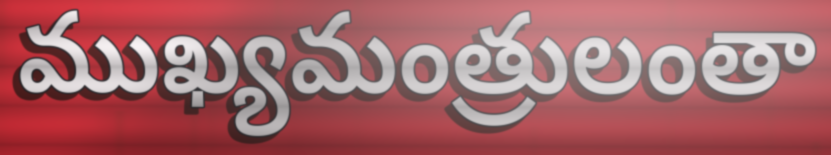
ముఖ్యమంత్రులంతా